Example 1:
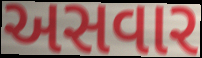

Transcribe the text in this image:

અસવાર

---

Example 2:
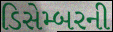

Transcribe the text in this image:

ડિસેમ્બરની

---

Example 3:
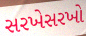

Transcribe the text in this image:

સરખેસરખો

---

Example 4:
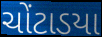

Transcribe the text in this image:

ચોંટાડયા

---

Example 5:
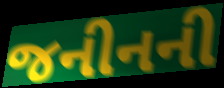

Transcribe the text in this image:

જનીનની